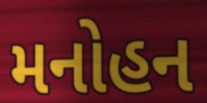
મનોહન